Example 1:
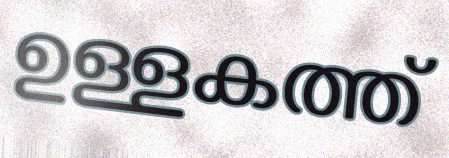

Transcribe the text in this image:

ഉള്ളകത്ത്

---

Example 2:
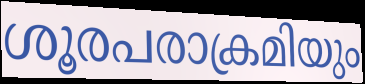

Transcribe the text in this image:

ശൂരപരാക്രമിയും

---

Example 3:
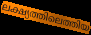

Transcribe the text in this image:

ലക്ഷ്യത്തിലെത്തിയ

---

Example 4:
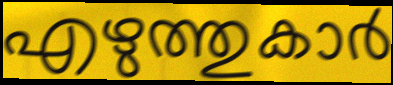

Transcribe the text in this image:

എഴുത്തുകാർ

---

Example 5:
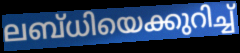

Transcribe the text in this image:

ലബ്ധിയെക്കുറിച്ച്